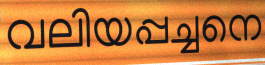
വലിയപ്പച്ചനെ